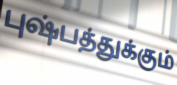
புஷ்பத்துக்கும்